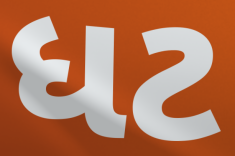
ધટ